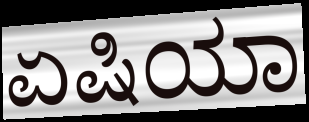
ಏಷಿಯಾ